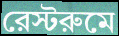
রেস্টরুমে